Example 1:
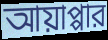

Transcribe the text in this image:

আয়াপ্পার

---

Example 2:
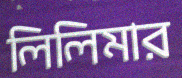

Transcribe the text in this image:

লিলিমার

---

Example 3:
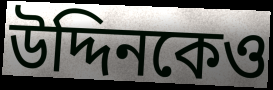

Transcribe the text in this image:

উদ্দিনকেও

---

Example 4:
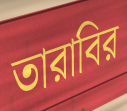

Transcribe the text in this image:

তারাবির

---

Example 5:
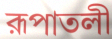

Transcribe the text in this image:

রূপাতলী